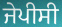
ਜੇਪੀਸੀ